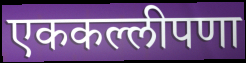
एककल्लीपणा